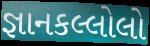
જ્ઞાનકલ્લોલો